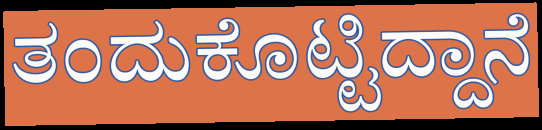
ತಂದುಕೊಟ್ಟಿದ್ದಾನೆ